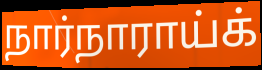
நார்நாராய்க்